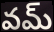
వమ్